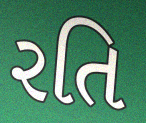
રતિ